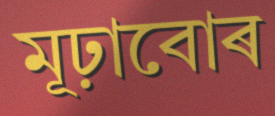
মূঢ়াবোৰ